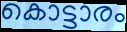
കൊട്ടാരം